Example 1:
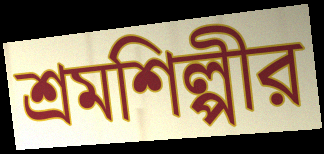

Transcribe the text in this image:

শ্রমশিল্পীর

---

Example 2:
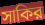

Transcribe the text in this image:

সাকির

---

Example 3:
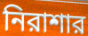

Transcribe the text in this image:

নিরাশার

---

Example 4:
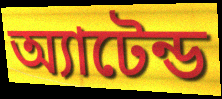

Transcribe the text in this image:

অ্যাটেন্ড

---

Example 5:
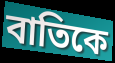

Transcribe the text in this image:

বাতিকে